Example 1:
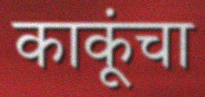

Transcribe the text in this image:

काकूंचा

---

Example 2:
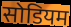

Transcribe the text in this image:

सोडियम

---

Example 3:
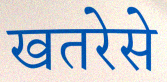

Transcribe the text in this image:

खतरेसे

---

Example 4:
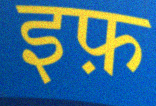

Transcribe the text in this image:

इफ़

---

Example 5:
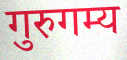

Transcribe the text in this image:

गुरुगम्य